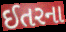
ઈતરના